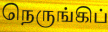
நெருங்கிப்